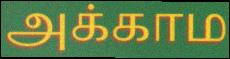
அக்காம